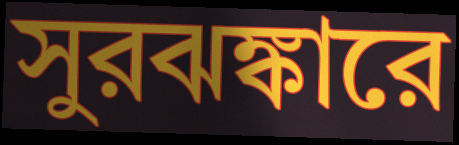
সুরঝঙ্কারে